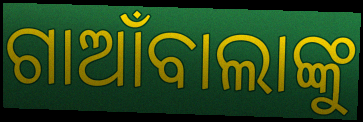
ଗାଆଁବାଲାଙ୍କୁ